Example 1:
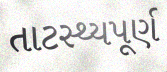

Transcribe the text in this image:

તાટસ્થ્યપૂર્ણ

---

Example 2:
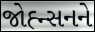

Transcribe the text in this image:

જોહ્ન્સનને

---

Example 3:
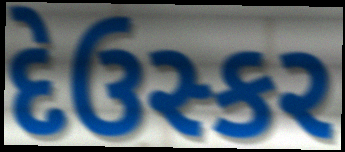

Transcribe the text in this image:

દેઉસ્કર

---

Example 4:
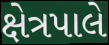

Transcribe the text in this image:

ક્ષેત્રપાલે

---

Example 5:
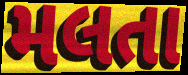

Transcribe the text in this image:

મલતા